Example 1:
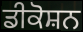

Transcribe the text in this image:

ਡੀਕੋਸ਼ਨ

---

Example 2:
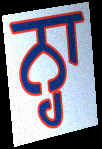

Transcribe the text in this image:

ਨ੍ਹਾ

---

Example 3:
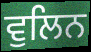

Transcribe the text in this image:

ਵੁਲਿਨ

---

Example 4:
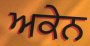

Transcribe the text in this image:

ਅਕੇਨ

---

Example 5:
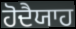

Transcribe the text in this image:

ਹੋਦੈਯਾਹ